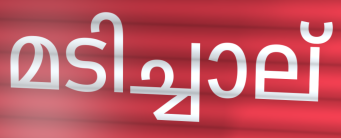
മടിച്ചാല്